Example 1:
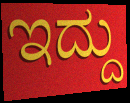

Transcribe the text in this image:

ಇದ್ದು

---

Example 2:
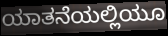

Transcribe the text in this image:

ಯಾತನೆಯಲ್ಲಿಯೂ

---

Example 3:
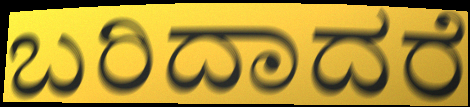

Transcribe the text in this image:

ಬರಿದಾದರೆ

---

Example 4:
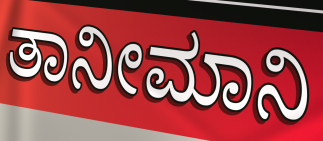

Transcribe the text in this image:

ತಾನೀಮಾನಿ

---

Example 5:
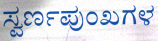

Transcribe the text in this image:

ಸ್ವರ್ಣಪುಂಖಗಳ